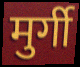
मुर्गी